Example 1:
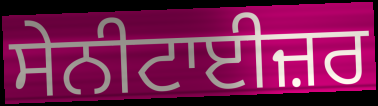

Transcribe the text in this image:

ਸੇਨੀਟਾਈਜ਼ਰ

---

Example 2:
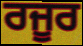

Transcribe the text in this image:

ਰਜੂਰ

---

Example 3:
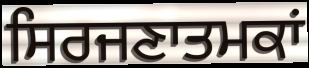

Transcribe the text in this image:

ਸਿਰਜਣਾਤਮਕਾਂ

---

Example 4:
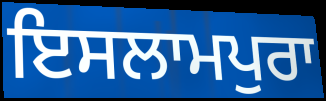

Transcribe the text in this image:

ਇਸਲਾਮਪੁਰਾ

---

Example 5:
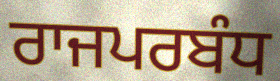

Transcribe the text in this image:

ਰਾਜਪਰਬੰਧ